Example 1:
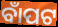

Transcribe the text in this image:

ବାଁପଟ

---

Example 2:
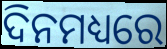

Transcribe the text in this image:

ଦିନମଧ୍ୟରେ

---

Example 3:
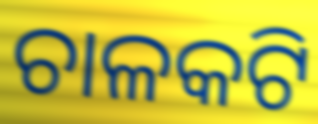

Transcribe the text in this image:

ଚାଳକଟି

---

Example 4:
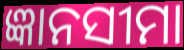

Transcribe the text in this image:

ଜ୍ଞାନସୀମା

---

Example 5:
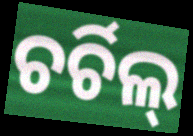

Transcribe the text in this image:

ଚର୍ଚିଲ୍